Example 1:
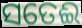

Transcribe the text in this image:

ସତେଈ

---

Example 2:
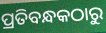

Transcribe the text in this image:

ପ୍ରତିବନ୍ଧକଠାରୁ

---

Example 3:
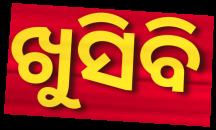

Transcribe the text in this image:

ଖୁସିବି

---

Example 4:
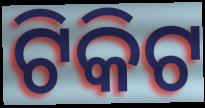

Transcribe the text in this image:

ଟିକିଟ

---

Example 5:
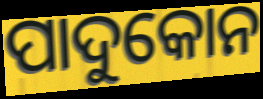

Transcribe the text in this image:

ପାଦୁକୋନ